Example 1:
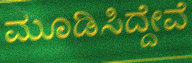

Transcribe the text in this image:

ಮೂಡಿಸಿದ್ದೇವೆ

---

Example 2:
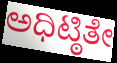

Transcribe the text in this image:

ಅಧಿಟ್ಠಿತೇ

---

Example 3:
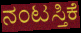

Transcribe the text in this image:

ನಂಟಸ್ತಿಕೆ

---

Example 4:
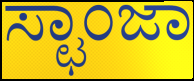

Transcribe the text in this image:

ಸ್ಟಾಂಜಾ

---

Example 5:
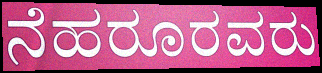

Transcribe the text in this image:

ನೆಹರೂರವರು